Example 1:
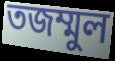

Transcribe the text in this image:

তজম্মুল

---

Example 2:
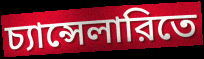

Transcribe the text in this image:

চ্যান্সেলারিতে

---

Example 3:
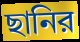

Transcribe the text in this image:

ছানির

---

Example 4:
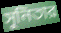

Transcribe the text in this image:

সুনিতার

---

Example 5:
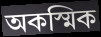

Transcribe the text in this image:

অকস্মিক